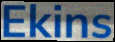
Ekins